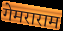
गेमराराम